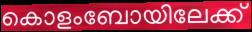
കൊളംബോയിലേക്ക്